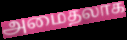
அமைதலாக